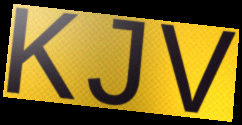
KJV